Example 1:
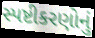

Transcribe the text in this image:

સ્પષ્ટીકરણોનું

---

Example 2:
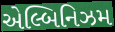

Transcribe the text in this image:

એલ્બિનિઝમ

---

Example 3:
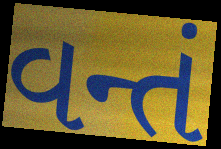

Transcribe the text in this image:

વન્તં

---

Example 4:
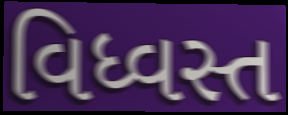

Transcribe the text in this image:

વિધ્વસ્ત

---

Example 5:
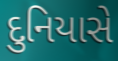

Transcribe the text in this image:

દુનિયાસે